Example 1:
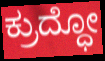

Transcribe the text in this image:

ಕ್ರುದ್ಧೋ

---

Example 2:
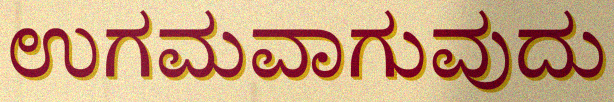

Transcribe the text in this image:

ಉಗಮವಾಗುವುದು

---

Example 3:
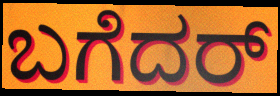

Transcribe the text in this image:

ಬಗೆದರ್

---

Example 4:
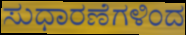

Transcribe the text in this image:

ಸುಧಾರಣೆಗಳಿಂದ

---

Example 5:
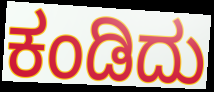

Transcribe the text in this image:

ಕಂಡಿದು